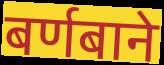
बर्णबाने